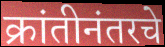
क्रांतीनंतरचे